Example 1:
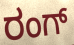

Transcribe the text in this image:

ರಂಗ್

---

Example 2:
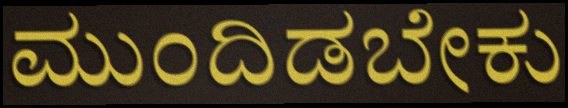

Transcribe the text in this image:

ಮುಂದಿಡಬೇಕು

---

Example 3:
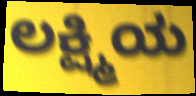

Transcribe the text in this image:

ಲಕ್ಷ್ಮಿಯ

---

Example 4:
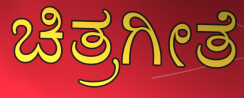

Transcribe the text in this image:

ಚಿತ್ರಗೀತೆ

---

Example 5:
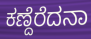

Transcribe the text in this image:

ಕಣ್ದೆರೆದನಾ